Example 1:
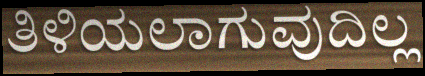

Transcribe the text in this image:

ತಿಳಿಯಲಾಗುವುದಿಲ್ಲ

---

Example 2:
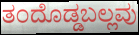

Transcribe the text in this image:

ತಂದೊಡ್ಡಬಲ್ಲವು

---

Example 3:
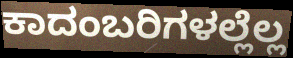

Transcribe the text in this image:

ಕಾದಂಬರಿಗಳಲ್ಲೆಲ್ಲ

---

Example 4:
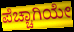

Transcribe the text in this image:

ಪೆಚ್ಚಾಗಿಯೇ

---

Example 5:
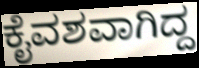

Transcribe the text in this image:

ಕೈವಶವಾಗಿದ್ದ